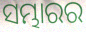
ସମ୍ଭାରର